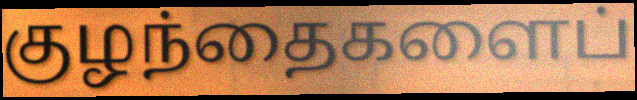
குழந்தைகளைப்